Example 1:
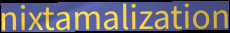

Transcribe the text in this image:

nixtamalization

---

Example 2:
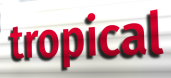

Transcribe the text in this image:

tropical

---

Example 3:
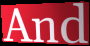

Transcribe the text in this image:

And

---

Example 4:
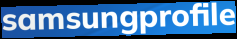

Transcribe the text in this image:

samsungprofile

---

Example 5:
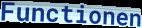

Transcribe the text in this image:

Functionen